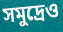
সমুদ্রেও